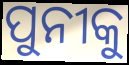
ପୁନୀକୁ